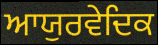
ਆਯੁਰਵੇਦਿਕ